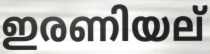
ഇരണിയല്